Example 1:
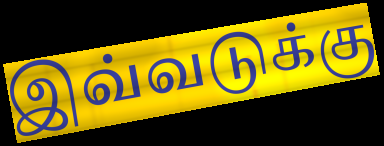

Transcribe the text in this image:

இவ்வடுக்கு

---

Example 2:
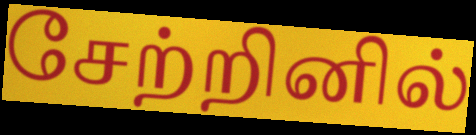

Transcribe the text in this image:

சேற்றினில்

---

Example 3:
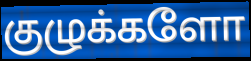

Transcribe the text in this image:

குழுக்களோ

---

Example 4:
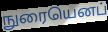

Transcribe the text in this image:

நுரையெனப்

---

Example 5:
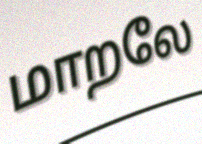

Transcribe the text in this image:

மாறலே